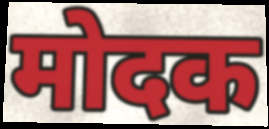
मोदक